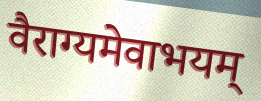
वैराग्यमेवाभयम्